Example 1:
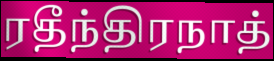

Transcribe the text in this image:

ரதீந்திரநாத்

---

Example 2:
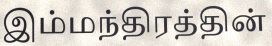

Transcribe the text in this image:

இம்மந்திரத்தின்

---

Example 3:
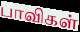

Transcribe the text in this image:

பாவிகள்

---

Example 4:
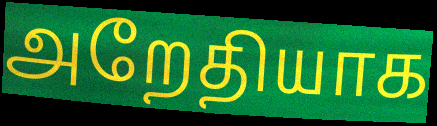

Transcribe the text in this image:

அறேதியாக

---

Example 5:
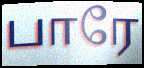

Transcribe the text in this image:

பாரே